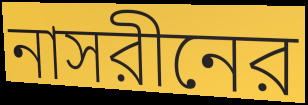
নাসরীনের